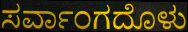
ಸರ್ವಾಂಗದೊಳು